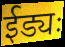
ईड्यः